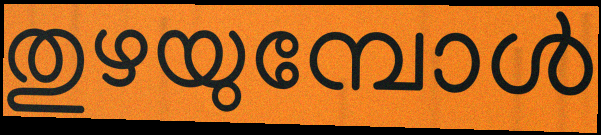
തുഴയുമ്പോൾ